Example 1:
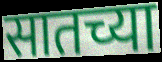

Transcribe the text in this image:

सातच्या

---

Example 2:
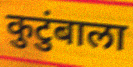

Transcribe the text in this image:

कुटुंबाला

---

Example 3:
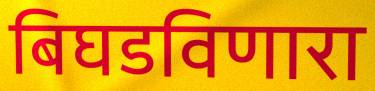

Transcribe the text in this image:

बिघडविणारा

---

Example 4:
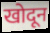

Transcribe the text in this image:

खोदून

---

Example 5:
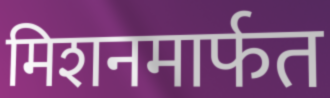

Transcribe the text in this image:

मिशनमार्फत